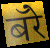
बॅरे